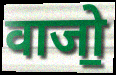
वाजो॒